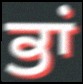
ਭਾਂ